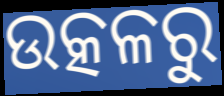
ଉତ୍କଳରୁ